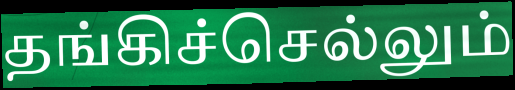
தங்கிச்செல்லும்